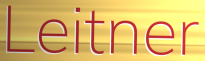
Leitner